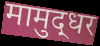
मामुद्धर